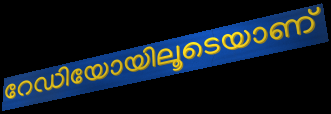
റേഡിയോയിലൂടെയാണ്